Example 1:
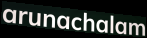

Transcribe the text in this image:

arunachalam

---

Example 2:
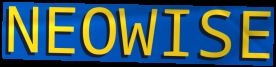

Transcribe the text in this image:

NEOWISE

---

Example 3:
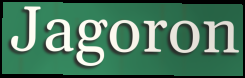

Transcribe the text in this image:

Jagoron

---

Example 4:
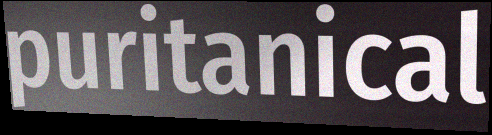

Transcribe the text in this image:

puritanical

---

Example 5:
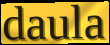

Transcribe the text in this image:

daula